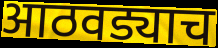
आठवड्याच